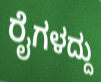
ರೈಗಳದ್ದು